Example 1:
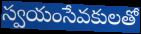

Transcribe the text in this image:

స్వయంసేవకులతో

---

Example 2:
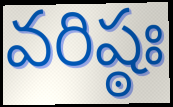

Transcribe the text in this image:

వరిష్ఠః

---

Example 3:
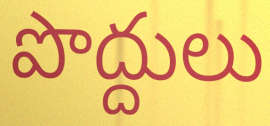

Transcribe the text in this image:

పొద్దులు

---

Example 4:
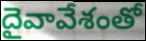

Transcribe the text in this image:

దైవావేశంతో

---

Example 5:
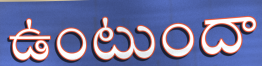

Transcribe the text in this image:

ఉంటుందా